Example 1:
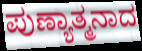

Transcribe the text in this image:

ಪುಣ್ಯಾತ್ಮನಾದ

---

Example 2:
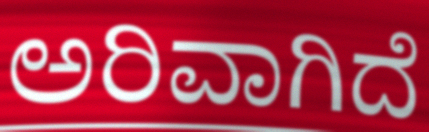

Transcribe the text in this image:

ಅರಿವಾಗಿದೆ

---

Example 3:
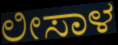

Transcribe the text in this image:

ಲೀಸಾಳ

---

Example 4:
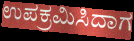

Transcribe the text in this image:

ಉಪಕ್ರಮಿಸಿದಾಗ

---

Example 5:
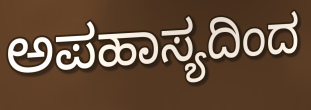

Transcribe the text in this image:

ಅಪಹಾಸ್ಯದಿಂದ